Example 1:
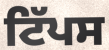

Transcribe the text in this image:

ਟਿੱਪਸ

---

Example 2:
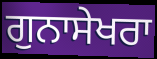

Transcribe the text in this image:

ਗੁਨਾਸੇਖਰਾ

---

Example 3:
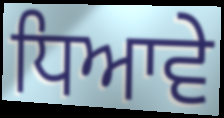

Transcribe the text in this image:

ਧਿਆਵੇ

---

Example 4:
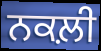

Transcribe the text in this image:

ਨਕਲ਼ੀ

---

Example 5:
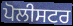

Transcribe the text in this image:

ਪੋਲੀਸਟਰ